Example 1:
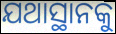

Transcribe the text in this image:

ଯଥାସ୍ଥାନକୁ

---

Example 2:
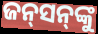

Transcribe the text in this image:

ଜନ୍‍ସନ୍‍ଙ୍କୁ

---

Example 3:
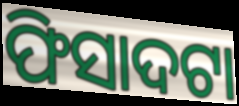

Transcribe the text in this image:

ଫିସାଦଟା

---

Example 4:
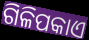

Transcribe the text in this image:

ଗିଳିପକାଏ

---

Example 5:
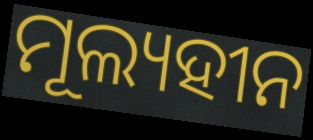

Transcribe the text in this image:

ମୂଲ୍ୟହୀନ